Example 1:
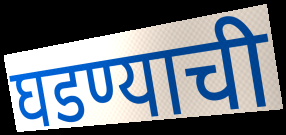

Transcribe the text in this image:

घडण्याची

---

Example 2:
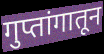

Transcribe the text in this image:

गुप्तांगातून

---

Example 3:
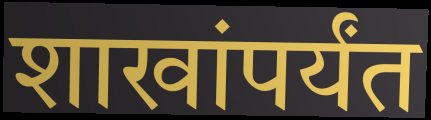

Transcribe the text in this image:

शाखांपर्यंत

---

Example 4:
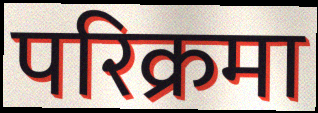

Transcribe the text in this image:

परिक्रमा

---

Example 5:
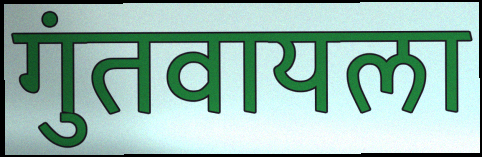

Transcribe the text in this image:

गुंतवायला